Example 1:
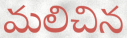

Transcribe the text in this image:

మలిచిన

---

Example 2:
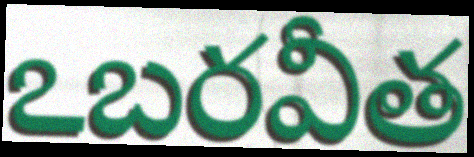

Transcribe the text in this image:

ఽబరవీత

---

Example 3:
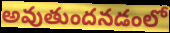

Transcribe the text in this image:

అవుతుందనడంలో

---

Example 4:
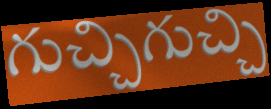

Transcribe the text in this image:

గుచ్చిగుచ్చి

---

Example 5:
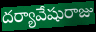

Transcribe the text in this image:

దర్యావేషురాజు